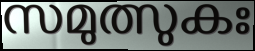
സമുത്സുകഃ